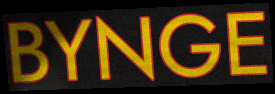
BYNGE